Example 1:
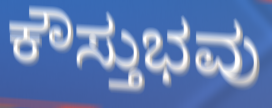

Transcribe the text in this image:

ಕೌಸ್ತುಭವು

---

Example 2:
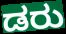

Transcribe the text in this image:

ಡರು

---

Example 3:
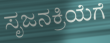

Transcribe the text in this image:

ಸೃಜನಕ್ರಿಯೆಗೆ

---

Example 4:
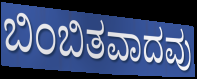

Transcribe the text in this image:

ಬಿಂಬಿತವಾದವು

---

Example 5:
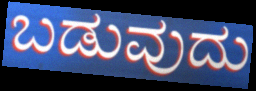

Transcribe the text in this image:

ಬಡುವುದು